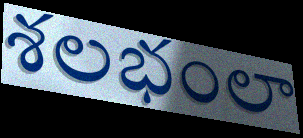
శలభంలా